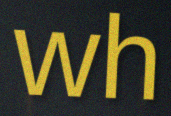
wh